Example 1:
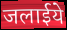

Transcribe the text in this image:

जलाईये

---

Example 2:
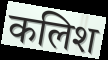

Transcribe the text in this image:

कलिश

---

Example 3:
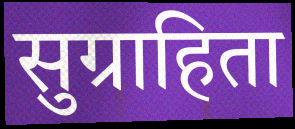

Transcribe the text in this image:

सुग्राहिता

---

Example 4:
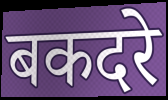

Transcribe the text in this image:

बकदरे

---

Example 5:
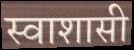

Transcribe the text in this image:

स्वाशासी